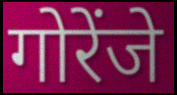
गोरेंजे